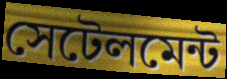
সেটেলমেন্ট